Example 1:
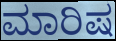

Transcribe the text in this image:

ಮಾರಿಷ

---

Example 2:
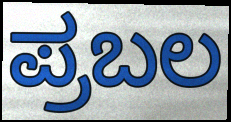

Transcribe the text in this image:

ಪ್ರಬಲ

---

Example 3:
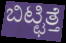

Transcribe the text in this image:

ಬಿಟ್ಟಿತ್ತೆ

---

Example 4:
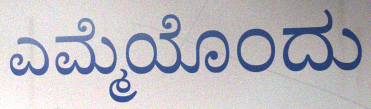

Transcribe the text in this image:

ಎಮ್ಮೆಯೊಂದು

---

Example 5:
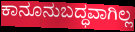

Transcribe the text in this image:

ಕಾನೂನುಬದ್ಧವಾಗಿಲ್ಲ